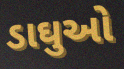
ડાઘુઓ